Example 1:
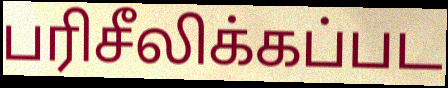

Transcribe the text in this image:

பரிசீலிக்கப்பட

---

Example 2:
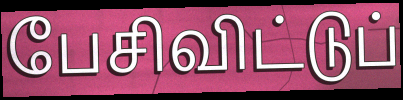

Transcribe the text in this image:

பேசிவிட்டுப்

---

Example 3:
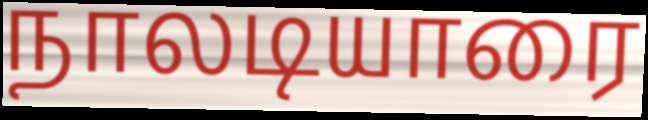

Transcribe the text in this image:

நாலடியாரை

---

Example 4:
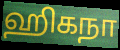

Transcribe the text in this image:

ஹிகநா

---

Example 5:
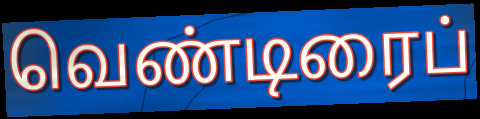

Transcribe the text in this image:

வெண்டிரைப்